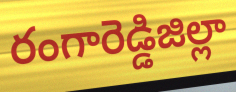
రంగారెడ్డిజిల్లా